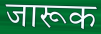
जारूक